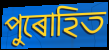
পুৰোহিত